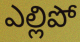
ఎల్లిపో